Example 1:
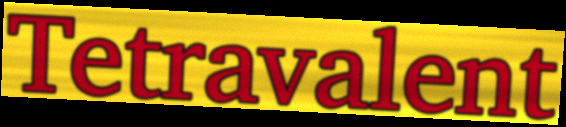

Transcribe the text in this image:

Tetravalent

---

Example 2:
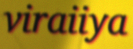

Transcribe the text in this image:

viraiiya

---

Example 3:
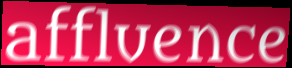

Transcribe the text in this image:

affluence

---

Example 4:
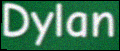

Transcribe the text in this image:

Dylan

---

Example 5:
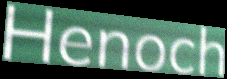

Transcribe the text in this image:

Henoch